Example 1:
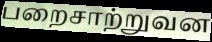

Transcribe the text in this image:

பறைசாற்றுவன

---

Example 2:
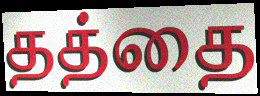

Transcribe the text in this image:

தத்தை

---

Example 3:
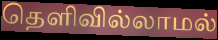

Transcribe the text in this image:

தெளிவில்லாமல்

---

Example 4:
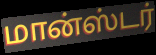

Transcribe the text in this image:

மான்ஸ்டர்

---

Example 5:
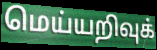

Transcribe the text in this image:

மெய்யறிவுக்